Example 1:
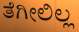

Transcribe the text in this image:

ತೆಗೀಲಿಲ್ಲ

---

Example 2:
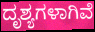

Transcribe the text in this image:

ದೃಶ್ಯಗಳಾಗಿವೆ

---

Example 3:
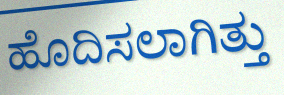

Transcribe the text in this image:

ಹೊದಿಸಲಾಗಿತ್ತು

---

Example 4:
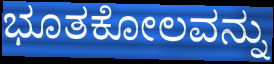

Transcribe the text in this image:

ಭೂತಕೋಲವನ್ನು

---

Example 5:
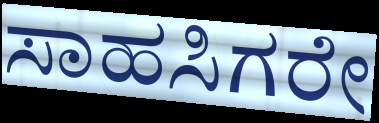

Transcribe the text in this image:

ಸಾಹಸಿಗರೇ